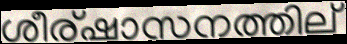
ശീര്ഷാസനത്തില്